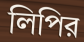
লিপির